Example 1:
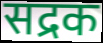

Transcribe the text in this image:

सद्रक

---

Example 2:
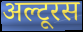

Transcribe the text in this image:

अल्टूरस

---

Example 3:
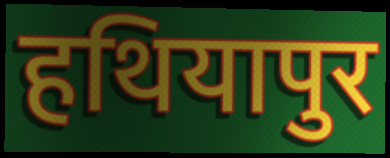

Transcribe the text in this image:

हथियापुर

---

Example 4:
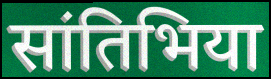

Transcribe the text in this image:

सांतिभिया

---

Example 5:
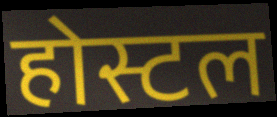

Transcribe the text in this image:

होस्टल